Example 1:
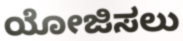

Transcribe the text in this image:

ಯೋಜಿಸಲು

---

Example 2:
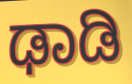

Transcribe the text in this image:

ಢಾಡಿ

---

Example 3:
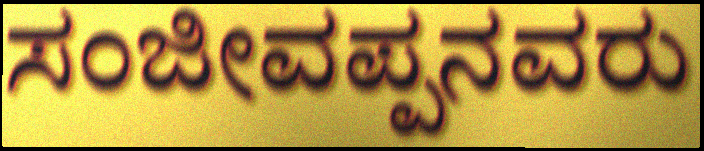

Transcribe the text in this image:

ಸಂಜೀವಪ್ಪನವರು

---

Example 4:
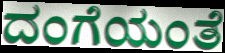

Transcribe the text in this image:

ದಂಗೆಯಂತೆ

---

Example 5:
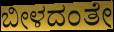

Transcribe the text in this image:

ಬೀಳದಂತೇ